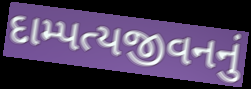
દામ્પત્યજીવનનું